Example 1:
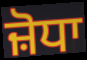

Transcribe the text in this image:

ਜ਼ੋਧਾ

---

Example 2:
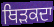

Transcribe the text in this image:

ਥਿੜਕਦਾ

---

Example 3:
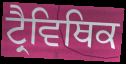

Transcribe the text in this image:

ਟ੍ਰੈਵਿਥਿਕ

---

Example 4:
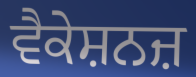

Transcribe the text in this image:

ਵੈਕੇਸ਼ਨਜ਼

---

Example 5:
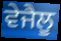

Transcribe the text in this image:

ਵੇਜੈਲੂ